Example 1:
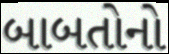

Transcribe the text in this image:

બાબતોનો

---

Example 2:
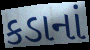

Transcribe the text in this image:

કડાનાં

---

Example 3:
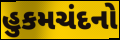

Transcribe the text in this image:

હુકમચંદનો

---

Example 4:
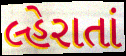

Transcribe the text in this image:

લ્હેરાતાં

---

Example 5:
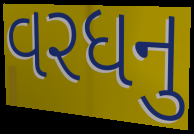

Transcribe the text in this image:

વરધનુ